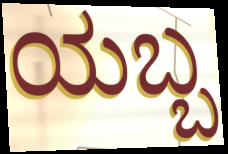
ಯಬ್ಬ